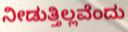
ನೀಡುತ್ತಿಲ್ಲವೆಂದು